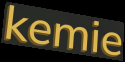
kemie